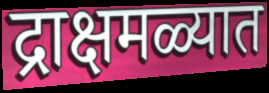
द्राक्षमळ्यात